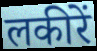
लकीरें